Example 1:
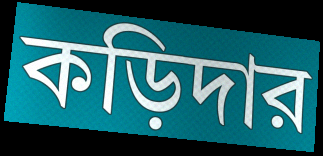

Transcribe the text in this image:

কড়িদার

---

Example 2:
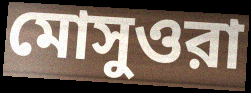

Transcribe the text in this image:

মোসুওরা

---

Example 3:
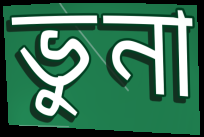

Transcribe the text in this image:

ভুনা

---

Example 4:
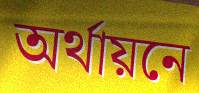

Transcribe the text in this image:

অর্থায়নে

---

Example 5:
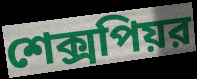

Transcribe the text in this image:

শেক্সপিয়র